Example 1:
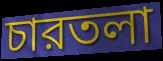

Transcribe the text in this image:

চারতলা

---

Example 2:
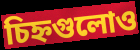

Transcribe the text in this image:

চিহ্নগুলোও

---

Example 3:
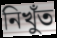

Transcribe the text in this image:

নিখুঁত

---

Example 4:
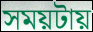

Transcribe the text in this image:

সময়টায়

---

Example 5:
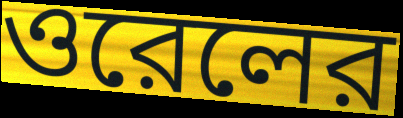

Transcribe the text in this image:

ওরেলের